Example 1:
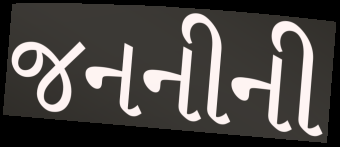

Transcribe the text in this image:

જનનીની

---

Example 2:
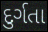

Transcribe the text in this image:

દુર્ગતા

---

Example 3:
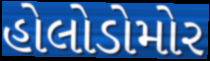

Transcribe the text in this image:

હોલોડોમોર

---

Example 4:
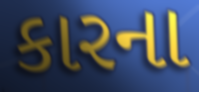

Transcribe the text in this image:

કારના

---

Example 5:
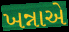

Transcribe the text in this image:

ખન્નાએ